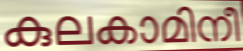
കുലകാമിനീ